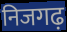
निजगढ़